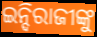
ଇନ୍ଦିରାଜୀଙ୍କୁ